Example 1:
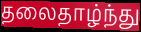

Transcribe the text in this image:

தலைதாழ்ந்து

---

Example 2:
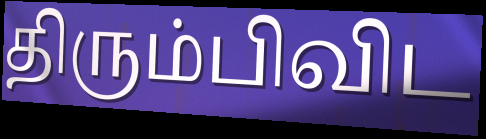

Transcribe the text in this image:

திரும்பிவிட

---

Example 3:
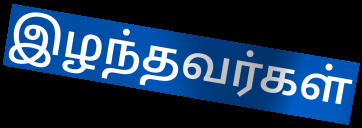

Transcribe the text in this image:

இழந்தவர்கள்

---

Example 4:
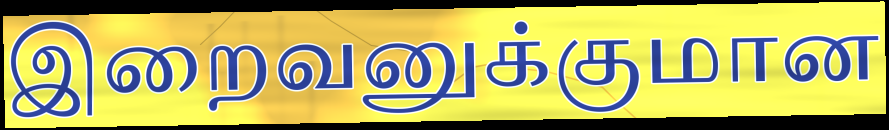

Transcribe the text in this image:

இறைவனுக்குமான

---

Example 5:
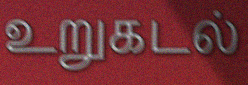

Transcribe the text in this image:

உறுகடல்